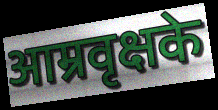
आम्रवृक्षके